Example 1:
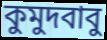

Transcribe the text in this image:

কুমুদবাবু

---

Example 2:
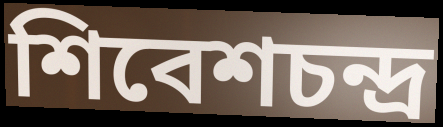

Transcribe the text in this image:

শিবেশচন্দ্র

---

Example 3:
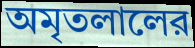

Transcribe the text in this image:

অমৃতলালের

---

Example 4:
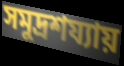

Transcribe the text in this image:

সমুদ্রশয্যায়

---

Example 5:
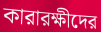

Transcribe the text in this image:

কারারক্ষীদের